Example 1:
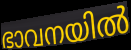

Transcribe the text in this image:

ഭാവനയിൽ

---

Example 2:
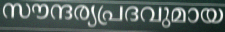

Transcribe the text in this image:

സൗന്ദര്യപ്രദവുമായ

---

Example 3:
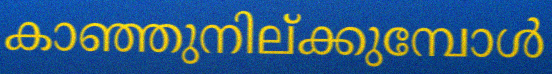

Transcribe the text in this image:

കാഞ്ഞുനില്ക്കുമ്പോൾ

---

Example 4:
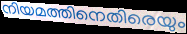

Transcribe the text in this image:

നിയമത്തിനെതിരെയും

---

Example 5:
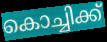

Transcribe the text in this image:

കൊച്ചിക്ക്